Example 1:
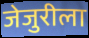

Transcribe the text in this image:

जेजुरीला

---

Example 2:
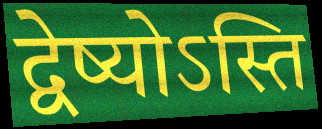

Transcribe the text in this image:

द्वेष्योऽस्ति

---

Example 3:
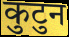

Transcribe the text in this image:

कुटुन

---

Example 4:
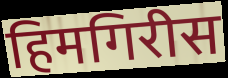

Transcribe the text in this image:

हिमगिरीस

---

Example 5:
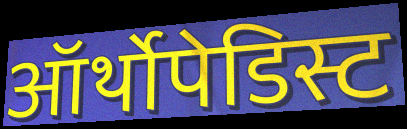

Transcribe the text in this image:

ऑर्थोपेडिस्ट